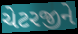
ચેટરજીને